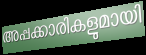
അപ്പക്കാരികളുമായി